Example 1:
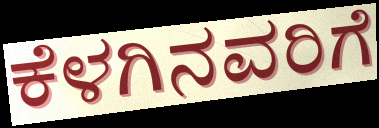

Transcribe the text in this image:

ಕೆಳಗಿನವರಿಗೆ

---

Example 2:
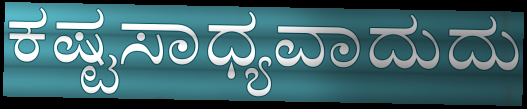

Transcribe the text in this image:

ಕಷ್ಟಸಾಧ್ಯವಾದುದು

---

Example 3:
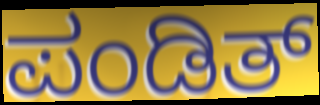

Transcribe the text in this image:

ಪಂಡಿತ್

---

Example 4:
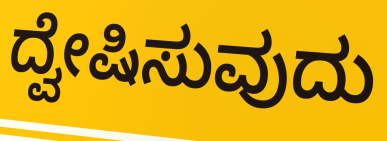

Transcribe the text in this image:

ದ್ವೇಷಿಸುವುದು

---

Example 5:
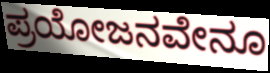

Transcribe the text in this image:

ಪ್ರಯೋಜನವೇನೂ